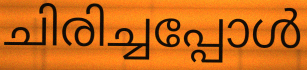
ചിരിച്ചപ്പോൾ